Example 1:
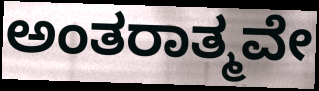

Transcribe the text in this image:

ಅಂತರಾತ್ಮವೇ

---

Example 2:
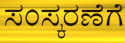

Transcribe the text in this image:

ಸಂಸ್ಕರಣೆಗೆ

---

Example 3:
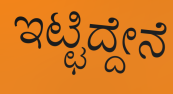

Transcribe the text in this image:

ಇಟ್ಟಿದ್ದೇನೆ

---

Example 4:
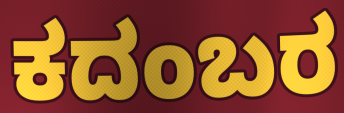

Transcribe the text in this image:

ಕದಂಬರ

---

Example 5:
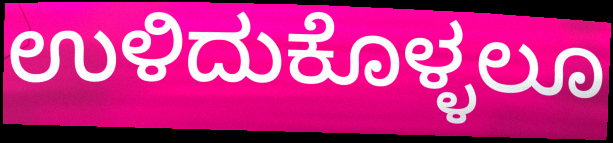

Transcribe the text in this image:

ಉಳಿದುಕೊಳ್ಳಲೂ